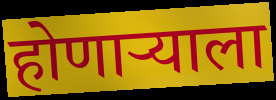
होणाऱ्याला